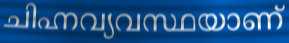
ചിഹ്നവ്യവസ്ഥയാണ്